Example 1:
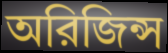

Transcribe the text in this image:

অরিজিন্স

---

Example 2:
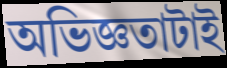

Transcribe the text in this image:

অভিজ্ঞতাটাই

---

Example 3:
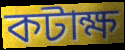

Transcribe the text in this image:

কটাক্ষ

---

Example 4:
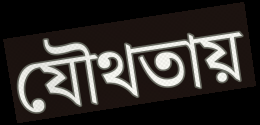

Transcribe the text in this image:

যৌথতায়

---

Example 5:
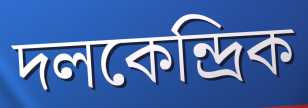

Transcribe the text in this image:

দলকেন্দ্রিক